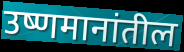
उष्णमानांतील